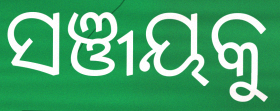
ସଞ୍ଜୟକୁ